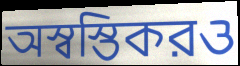
অস্বস্তিকরও